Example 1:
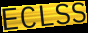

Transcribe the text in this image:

ECLSS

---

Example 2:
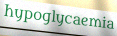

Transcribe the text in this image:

hypoglycaemia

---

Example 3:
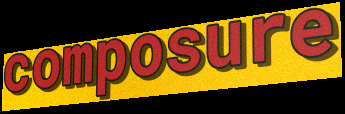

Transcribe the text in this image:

composure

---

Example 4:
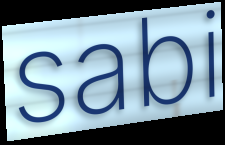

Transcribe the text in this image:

sabi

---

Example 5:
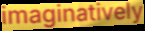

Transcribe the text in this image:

imaginatively